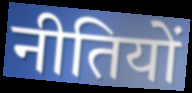
नीतियों